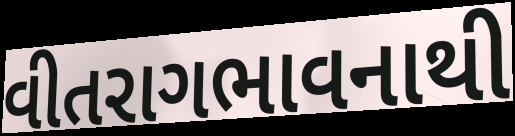
વીતરાગભાવનાથી